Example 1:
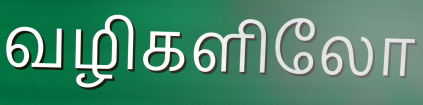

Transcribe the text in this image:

வழிகளிலோ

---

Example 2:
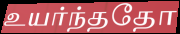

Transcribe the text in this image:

உயர்ந்ததோ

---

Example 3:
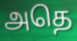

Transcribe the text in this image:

அதெ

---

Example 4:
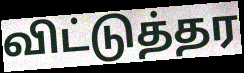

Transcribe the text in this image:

விட்டுத்தர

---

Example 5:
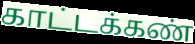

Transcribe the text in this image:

காட்டக்கண்